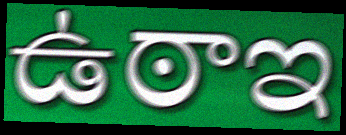
ఉఠాఇ